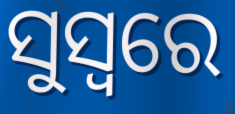
ସୁସ୍ୱରେ